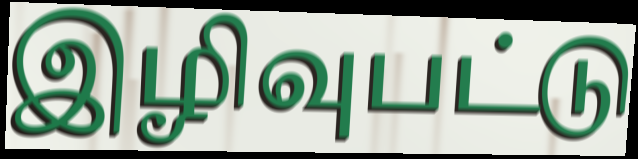
இழிவுபட்டு